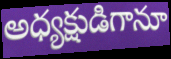
అధ్యక్షుడిగానూ